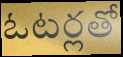
ఓటర్లతో